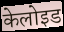
केलोइड